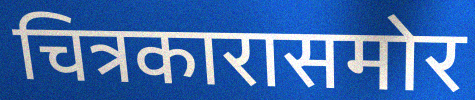
चित्रकारासमोर